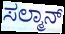
ಸಲ್ಮಾನ್